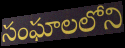
సంఘాలలోని